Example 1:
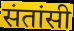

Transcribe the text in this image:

संतांसी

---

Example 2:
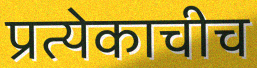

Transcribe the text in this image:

प्रत्येकाचीच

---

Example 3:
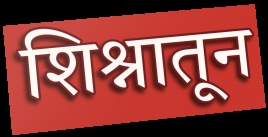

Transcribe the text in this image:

शिश्नातून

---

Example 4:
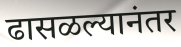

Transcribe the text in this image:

ढासळल्यानंतर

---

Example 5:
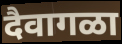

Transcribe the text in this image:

दैवागळा